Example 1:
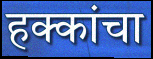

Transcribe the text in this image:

हक्कांचा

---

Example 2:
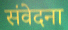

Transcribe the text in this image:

संवेदना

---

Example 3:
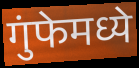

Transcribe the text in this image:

गुंफेमध्ये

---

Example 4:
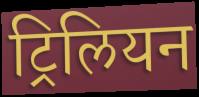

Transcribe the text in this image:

ट्रिलियन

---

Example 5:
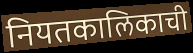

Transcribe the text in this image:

नियतकालिकाची